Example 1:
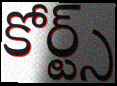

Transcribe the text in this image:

కోర్ట్స్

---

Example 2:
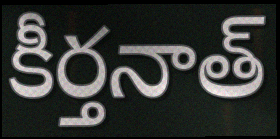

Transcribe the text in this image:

కీర్తనాత్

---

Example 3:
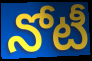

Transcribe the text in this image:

నోటీ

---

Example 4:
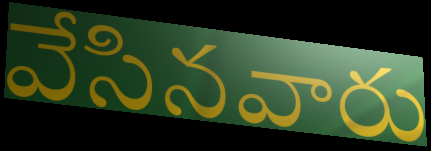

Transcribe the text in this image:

వేసినవారు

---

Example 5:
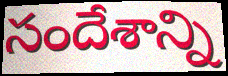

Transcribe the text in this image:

సందేశాన్ని